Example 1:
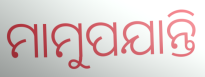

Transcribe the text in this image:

ମାମୁପଯାନ୍ତି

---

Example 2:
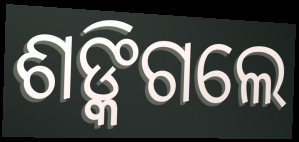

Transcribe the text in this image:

ଶଙ୍କିଗଲେ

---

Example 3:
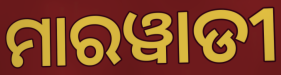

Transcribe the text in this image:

ମାରୱାଡୀ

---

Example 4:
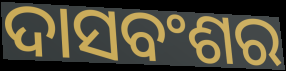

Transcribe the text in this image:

ଦାସବଂଶର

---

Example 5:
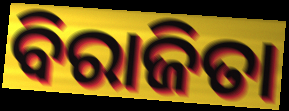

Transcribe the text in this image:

ବିରାଜିତା